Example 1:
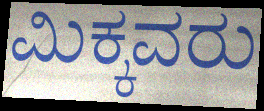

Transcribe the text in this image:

ಮಿಕ್ಕವರು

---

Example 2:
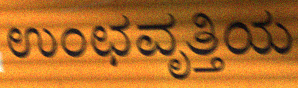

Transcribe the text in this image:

ಉಂಛವೃತ್ತಿಯ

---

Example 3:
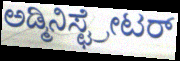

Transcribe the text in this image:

ಅಡ್ಮಿನಿಸ್ಟ್ರೇಟರ್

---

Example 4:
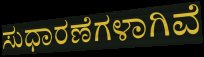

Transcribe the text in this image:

ಸುಧಾರಣೆಗಳಾಗಿವೆ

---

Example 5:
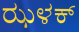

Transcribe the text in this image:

ಝಳಕ್